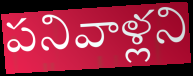
పనివాళ్లని